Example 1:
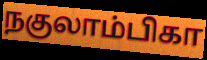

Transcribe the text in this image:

நகுலாம்பிகா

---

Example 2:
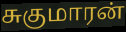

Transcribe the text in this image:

சுகுமாரன்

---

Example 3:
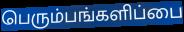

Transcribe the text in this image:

பெரும்பங்களிப்பை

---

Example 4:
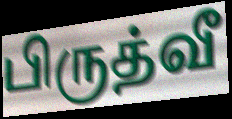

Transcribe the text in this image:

பிருத்வீ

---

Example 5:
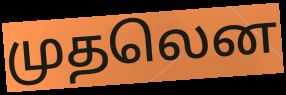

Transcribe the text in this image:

முதலென